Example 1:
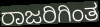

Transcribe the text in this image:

ರಾಜರಿಗಿಂತ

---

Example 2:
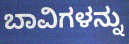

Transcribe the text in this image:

ಬಾವಿಗಳನ್ನು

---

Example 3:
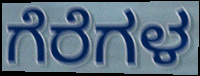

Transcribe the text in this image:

ಗೆರೆಗಳ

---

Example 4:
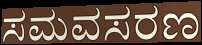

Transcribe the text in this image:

ಸಮವಸರಣ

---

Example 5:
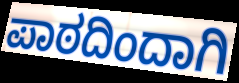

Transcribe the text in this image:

ಪಾಠದಿಂದಾಗಿ